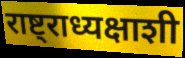
राष्ट्राध्यक्षाशी